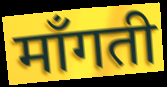
माँगती